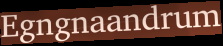
Egngnaandrum